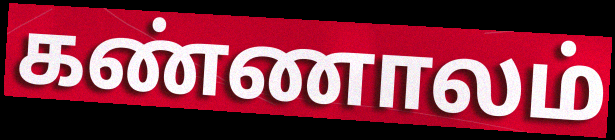
கண்ணாலம்